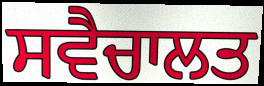
ਸਵੈਚਾਲਤ